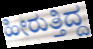
ಹೀರುತ್ತಿದ್ದ